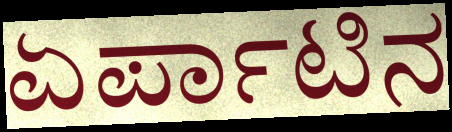
ಏರ್ಪಾಟಿನ